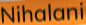
Nihalani